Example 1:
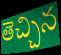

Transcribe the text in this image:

తెచ్చిన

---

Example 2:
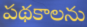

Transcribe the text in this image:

పథకాలను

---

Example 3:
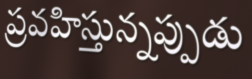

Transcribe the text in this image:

ప్రవహిస్తున్నప్పుడు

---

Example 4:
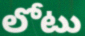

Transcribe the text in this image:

లోటు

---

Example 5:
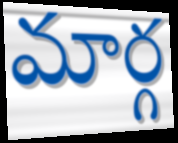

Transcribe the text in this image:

మార్గ